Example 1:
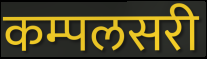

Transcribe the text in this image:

कम्पलसरी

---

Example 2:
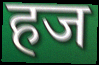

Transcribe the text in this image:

हज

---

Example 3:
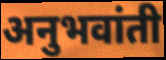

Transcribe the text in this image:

अनुभवांती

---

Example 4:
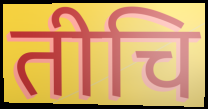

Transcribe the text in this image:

तीचि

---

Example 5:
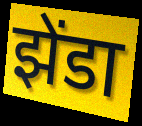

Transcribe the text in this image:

झेंडा